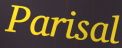
Parisal